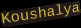
Koushalya